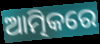
ଆତ୍ମିକରେ